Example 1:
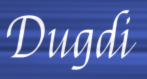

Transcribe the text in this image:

Dugdi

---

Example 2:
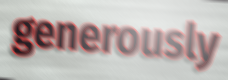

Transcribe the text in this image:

generously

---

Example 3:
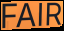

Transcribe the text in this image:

FAIR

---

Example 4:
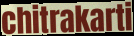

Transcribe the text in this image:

chitrakarti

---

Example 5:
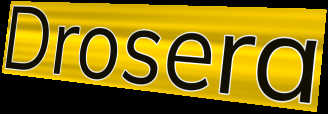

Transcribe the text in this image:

Drosera